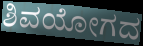
ಶಿವಯೋಗದ